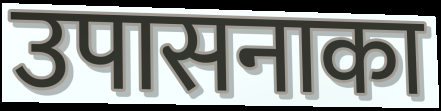
उपासनाका